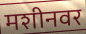
मशीनवर